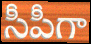
సీపీగా